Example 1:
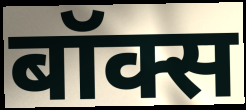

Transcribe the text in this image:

बॉक्स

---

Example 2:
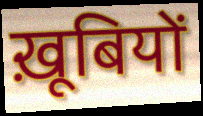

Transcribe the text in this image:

ख़ूबियों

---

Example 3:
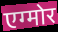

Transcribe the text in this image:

एग्मोर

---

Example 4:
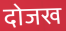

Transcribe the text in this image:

दोजख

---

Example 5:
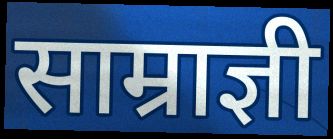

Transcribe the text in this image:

साम्राज्ञी